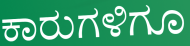
ಕಾರುಗಳಿಗೂ